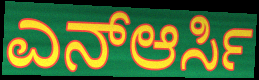
ಎನ್ಆರ್ಸಿ